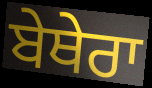
ਬੇਥੇਰਾ